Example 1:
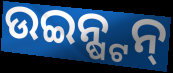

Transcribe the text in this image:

ଉଇନ୍ଷ୍ଟନ୍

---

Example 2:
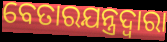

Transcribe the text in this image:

ବେତାରଯନ୍ତ୍ରଦ୍ୱାରା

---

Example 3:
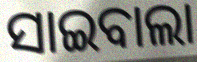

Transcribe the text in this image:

ସାଇବାଲା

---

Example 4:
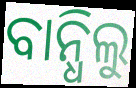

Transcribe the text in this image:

ବାନ୍ଧିଲୁ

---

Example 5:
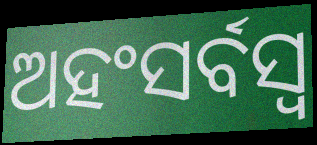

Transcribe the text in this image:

ଅହଂସର୍ବସ୍ୱ